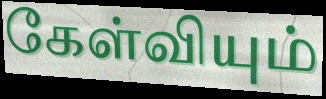
கேள்வியும்